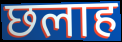
छलाह